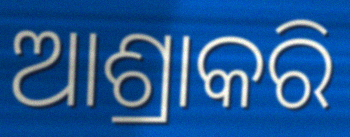
ଆଶ୍ରାକରି